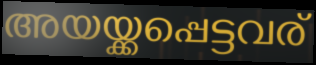
അയയ്ക്കപ്പെട്ടവര്